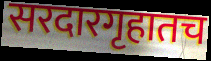
सरदारगृहातच